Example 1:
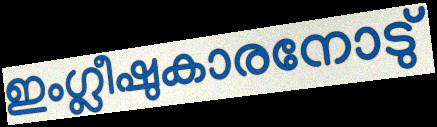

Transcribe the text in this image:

ഇംഗ്ലീഷുകാരനോടു്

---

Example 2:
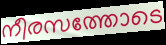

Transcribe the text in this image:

നീരസത്തോടെ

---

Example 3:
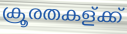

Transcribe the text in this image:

ക്രൂരതകള്ക്ക്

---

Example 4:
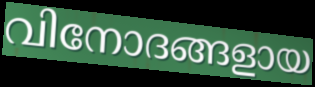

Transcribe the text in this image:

വിനോദങ്ങളായ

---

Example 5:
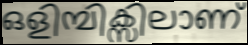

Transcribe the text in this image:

ഒളിമ്പിക്സിലാണ്